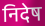
निदेष